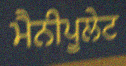
ਮੈਨੀਪੂਲੇਟ